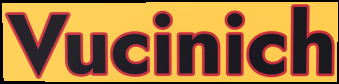
Vucinich